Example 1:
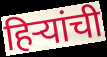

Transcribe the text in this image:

हिऱ्यांची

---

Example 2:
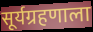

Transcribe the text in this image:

सूर्यग्रहणाला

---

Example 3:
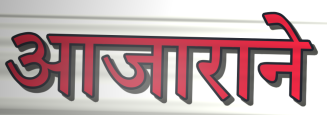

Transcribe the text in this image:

आजाराने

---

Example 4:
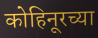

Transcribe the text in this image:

कोहिनूरच्या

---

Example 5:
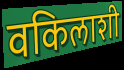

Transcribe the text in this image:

वकिलाशी